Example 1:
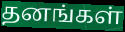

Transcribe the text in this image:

தனங்கள்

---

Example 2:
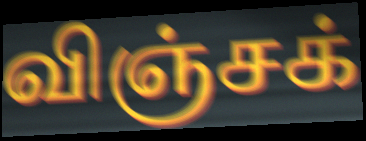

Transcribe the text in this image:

விஞ்சக்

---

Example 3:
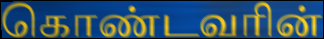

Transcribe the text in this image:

கொண்டவரின்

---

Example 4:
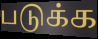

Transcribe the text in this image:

படுக்க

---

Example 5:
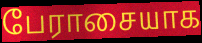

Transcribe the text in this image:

பேராசையாக